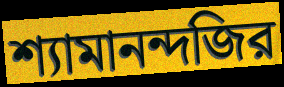
শ্যামানন্দজির